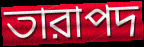
তারাপদ